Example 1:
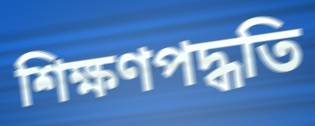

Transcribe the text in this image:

শিক্ষণপদ্ধতি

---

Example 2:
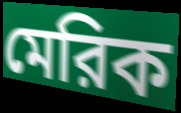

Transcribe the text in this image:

মেরিক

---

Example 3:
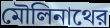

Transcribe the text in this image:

মৌলিনাথের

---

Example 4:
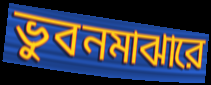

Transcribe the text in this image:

ভুবনমাঝারে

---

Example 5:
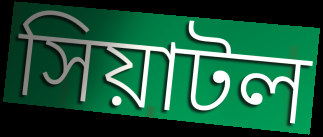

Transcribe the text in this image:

সিয়াটল